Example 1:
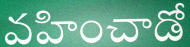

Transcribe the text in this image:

వహించాడో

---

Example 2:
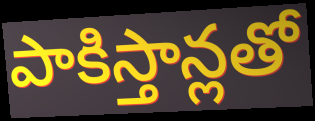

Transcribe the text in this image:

పాకిస్తాన్లతో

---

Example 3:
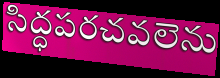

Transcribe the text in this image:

సిద్ధపరచవలెను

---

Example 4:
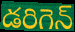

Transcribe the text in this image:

డరిగెన్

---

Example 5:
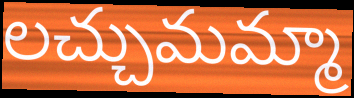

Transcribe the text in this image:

లచ్చుమమ్మా